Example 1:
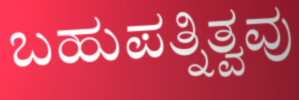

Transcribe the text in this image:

ಬಹುಪತ್ನಿತ್ವವು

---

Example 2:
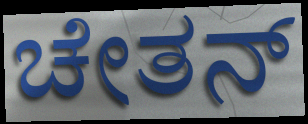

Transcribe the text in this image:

ಚೇತನ್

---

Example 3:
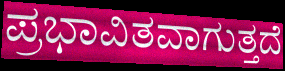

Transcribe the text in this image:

ಪ್ರಭಾವಿತವಾಗುತ್ತದೆ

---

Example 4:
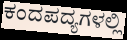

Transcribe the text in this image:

ಕಂದಪದ್ಯಗಳಲ್ಲಿ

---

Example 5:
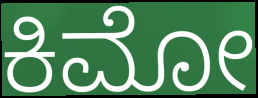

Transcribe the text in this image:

ಕಿಮೋ